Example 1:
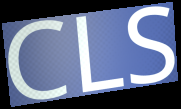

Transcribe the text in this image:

CLS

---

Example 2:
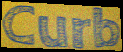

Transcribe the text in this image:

Curb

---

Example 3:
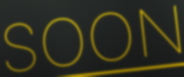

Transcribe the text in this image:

SOON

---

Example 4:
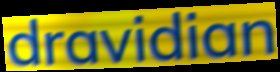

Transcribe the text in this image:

dravidian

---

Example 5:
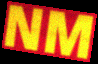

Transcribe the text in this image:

NM